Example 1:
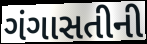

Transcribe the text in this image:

ગંગાસતીની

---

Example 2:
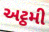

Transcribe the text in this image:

અટ્ઠમી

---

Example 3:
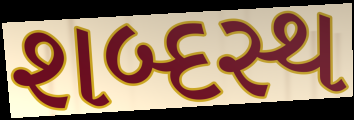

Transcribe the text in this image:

શબ્દસ્થ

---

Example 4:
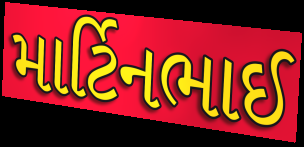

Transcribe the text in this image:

માર્ટિનભાઈ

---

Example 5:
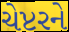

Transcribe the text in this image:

ચેપ્ટરને